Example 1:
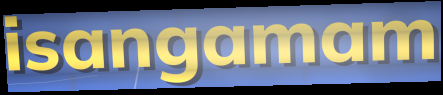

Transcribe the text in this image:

isangamam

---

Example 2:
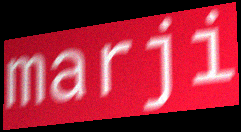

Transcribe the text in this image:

marji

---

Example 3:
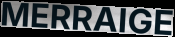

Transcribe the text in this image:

MERRAIGE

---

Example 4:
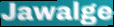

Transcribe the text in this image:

Jawalge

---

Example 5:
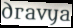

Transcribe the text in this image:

dravya